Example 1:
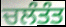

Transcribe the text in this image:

ਚਲੰਤੰਤ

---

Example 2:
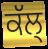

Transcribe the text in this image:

ਕੱਲ੍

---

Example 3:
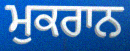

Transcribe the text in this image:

ਮੁਕਰਾਨ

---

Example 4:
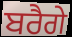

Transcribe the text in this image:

ਬਰੈਗੇ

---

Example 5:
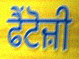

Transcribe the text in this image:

ਫੈਂਟੋਜ਼ੀ